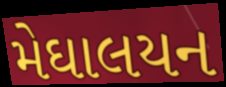
મેઘાલયન